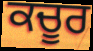
ਕਚੂਰ